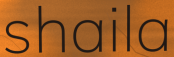
shaila